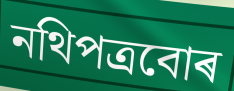
নথিপত্ৰবোৰ